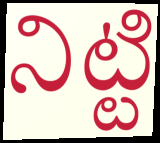
నిట్టి